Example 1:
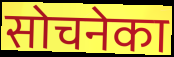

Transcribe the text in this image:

सोचनेका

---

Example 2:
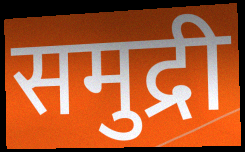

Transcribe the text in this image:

समुद्री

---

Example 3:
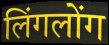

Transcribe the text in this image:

लिंगलोंग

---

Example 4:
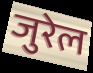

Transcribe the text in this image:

जुरेल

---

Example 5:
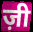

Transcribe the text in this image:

ज़ी